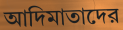
আদিমাতাদের